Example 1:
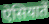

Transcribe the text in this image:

ऐसियातें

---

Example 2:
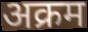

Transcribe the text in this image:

अक्रम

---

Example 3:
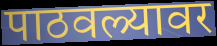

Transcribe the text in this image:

पाठवल्यावर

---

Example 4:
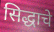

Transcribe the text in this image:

सिद्धाचे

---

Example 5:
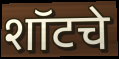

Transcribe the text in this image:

शॉटचे